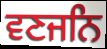
ਵਣਜਨਿ